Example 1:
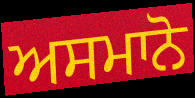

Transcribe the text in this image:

ਅਸਮਾਨੋ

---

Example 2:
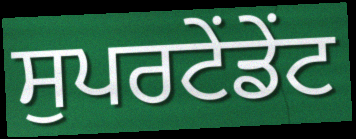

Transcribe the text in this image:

ਸੁਪਰਟੇਂਡੇਂਟ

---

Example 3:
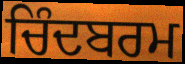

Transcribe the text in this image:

ਚਿੰਦਬਰਮ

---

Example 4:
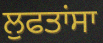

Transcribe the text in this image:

ਲੁਫਤਾਂਸਾ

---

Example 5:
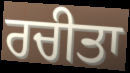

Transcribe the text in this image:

ਰਚੀਤਾ